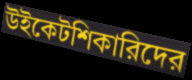
উইকেটশিকারিদের